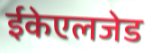
ईकेएलजेड